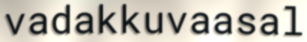
vadakkuvaasal